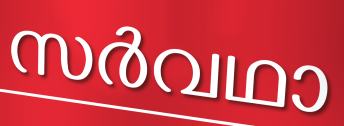
സർവഥാ